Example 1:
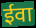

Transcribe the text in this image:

ईवा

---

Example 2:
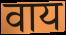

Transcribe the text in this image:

वाय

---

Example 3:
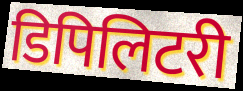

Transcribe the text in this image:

डिपिलिटरी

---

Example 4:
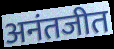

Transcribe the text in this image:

अनंतजीत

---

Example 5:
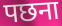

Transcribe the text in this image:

पछना